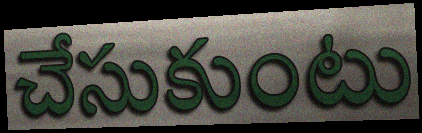
చేసుకుంటు